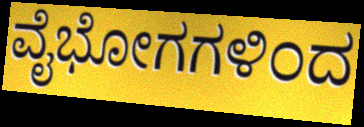
ವೈಭೋಗಗಳಿಂದ